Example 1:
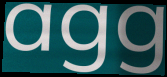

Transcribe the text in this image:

agg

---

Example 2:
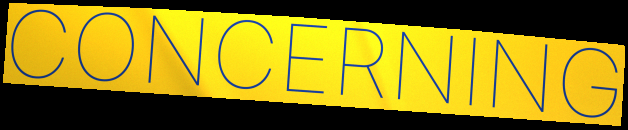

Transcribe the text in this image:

CONCERNING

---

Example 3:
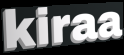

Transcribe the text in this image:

kiraa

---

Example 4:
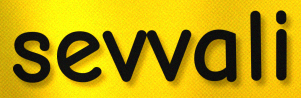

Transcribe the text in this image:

sevvali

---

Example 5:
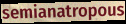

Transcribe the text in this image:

semianatropous